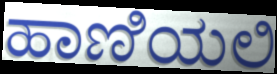
ಹಾಣಿಯಲಿ